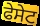
ਫੇਸੇਟ